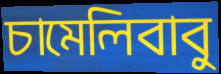
চামেলিবাবু